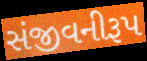
સંજીવનીરૂપ